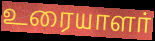
உரையாளர்